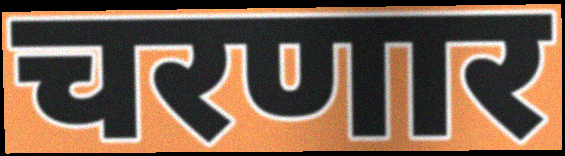
चरणार